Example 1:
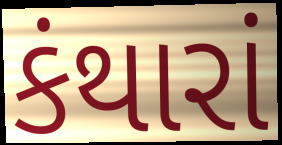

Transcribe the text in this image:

કંથારાં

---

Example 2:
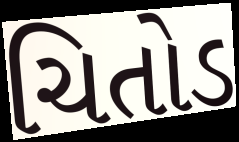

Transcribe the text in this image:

ચિતોડ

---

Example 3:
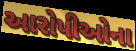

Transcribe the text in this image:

આરોપીઓના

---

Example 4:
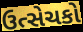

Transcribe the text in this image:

ઉત્સેચકો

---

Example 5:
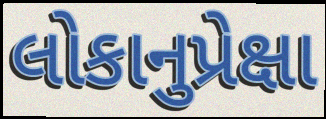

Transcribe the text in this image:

લોકાનુપ્રેક્ષા